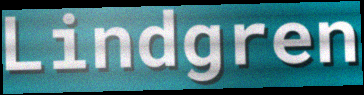
Lindgren